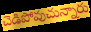
చెడిపోవుచున్నారు